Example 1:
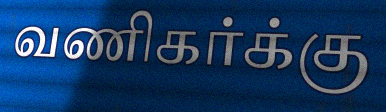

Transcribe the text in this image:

வணிகர்க்கு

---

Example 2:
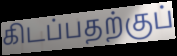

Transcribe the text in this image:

கிடப்பதற்குப்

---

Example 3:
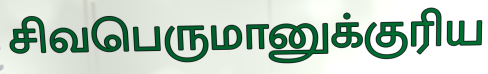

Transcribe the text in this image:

சிவபெருமானுக்குரிய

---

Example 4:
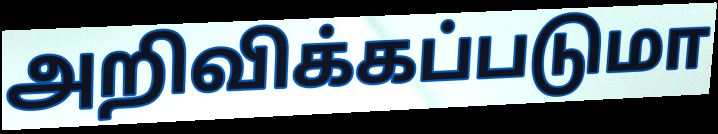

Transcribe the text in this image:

அறிவிக்கப்படுமா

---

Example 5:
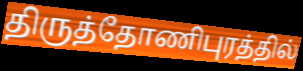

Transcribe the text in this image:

திருத்தோணிபுரத்தில்